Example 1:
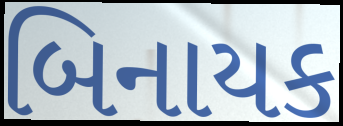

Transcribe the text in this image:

બિનાયક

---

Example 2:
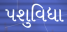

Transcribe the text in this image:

પશુવિદ્યા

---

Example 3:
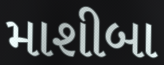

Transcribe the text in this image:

માશીબા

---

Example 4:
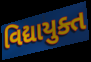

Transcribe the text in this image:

વિદ્યાયુક્ત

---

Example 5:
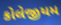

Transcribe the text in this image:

કોલેજીયમ